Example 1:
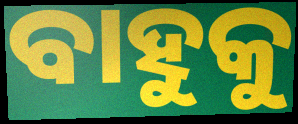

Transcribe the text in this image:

ବାହୁକୁ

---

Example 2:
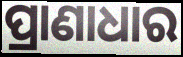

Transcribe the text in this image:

ପ୍ରାଣାଧାର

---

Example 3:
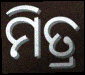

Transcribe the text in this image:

ମିତ୍ର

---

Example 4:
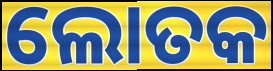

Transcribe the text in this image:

ଲୋତକ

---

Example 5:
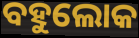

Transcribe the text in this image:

ବହୁଲୋକ